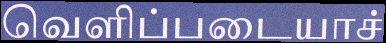
வெளிப்படையாச்